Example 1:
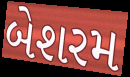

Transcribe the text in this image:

બેશરમ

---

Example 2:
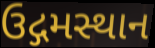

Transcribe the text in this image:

ઉદ્ગમસ્થાન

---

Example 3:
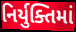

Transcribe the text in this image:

નિર્યુક્તિમાં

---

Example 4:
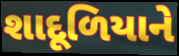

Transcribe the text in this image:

શાદૂળિયાને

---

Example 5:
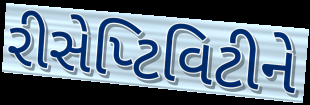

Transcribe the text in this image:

રીસેપ્ટિવિટીને